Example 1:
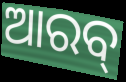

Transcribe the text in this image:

ଆରବ୍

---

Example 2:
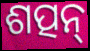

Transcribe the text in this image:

ଶତ୍ପନ୍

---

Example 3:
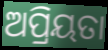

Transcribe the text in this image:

ଅପ୍ରିୟତା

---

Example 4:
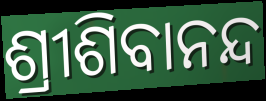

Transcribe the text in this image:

ଶ୍ରୀଶିବାନନ୍ଦ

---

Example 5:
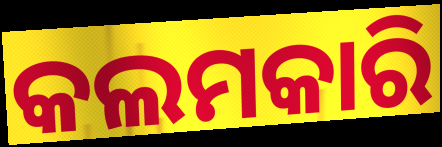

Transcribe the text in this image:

କଲମକାରି